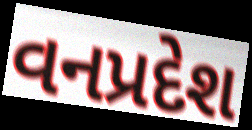
વનપ્રદેશ